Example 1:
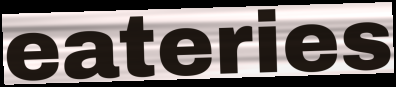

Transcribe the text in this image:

eateries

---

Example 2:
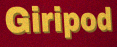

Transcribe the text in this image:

Giripod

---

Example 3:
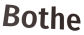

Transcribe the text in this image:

Bothe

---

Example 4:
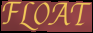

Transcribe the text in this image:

FLOAT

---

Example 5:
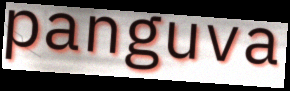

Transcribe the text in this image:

panguva